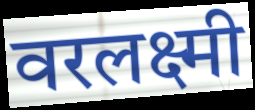
वरलक्ष्‍मी